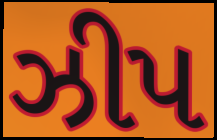
ઝીપ